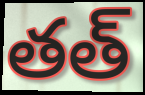
తత్